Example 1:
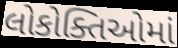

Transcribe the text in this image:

લોકોક્તિઓમાં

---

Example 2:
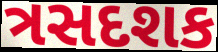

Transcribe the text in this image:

ત્રસદશક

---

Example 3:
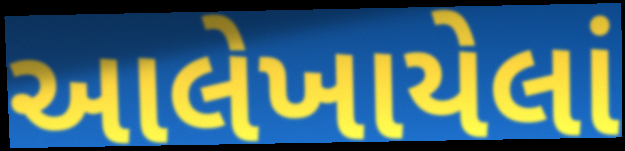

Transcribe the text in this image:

આલેખાયેલાં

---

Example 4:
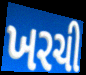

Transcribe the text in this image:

ખરચી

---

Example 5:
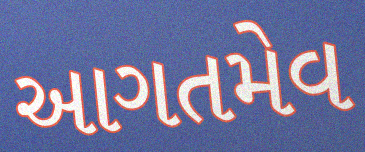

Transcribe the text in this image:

આગતમેવ